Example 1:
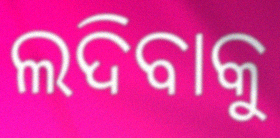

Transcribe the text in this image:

ଲଦିବାକୁ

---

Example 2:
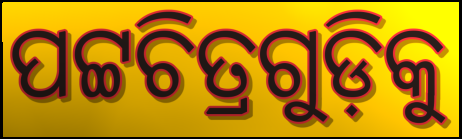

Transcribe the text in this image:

ପଟ୍ଟଚିତ୍ରଗୁଡ଼ିକୁ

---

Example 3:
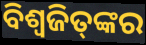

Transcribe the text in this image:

ବିଶ୍ଵଜିତ୍‌ଙ୍କର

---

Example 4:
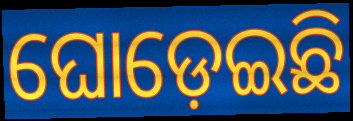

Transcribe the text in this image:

ଘୋଡ଼େଇଛି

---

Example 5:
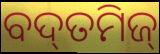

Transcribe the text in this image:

ବଦ୍‌ତମିଜ୍